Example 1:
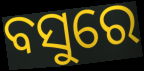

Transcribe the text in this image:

ବସୁରେ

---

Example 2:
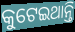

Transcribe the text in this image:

କୁଟେଇଥାନ୍ତି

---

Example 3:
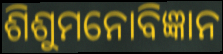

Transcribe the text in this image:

ଶିଶୁମନୋବିଜ୍ଞାନ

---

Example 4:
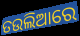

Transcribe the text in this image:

ତଉଲିଆରେ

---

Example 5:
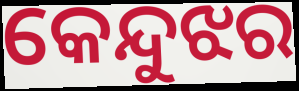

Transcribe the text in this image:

କେନ୍ଦୁଝର